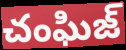
చంఘిజ్